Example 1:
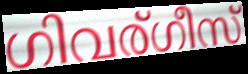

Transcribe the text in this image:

ഗിവര്ഗീസ്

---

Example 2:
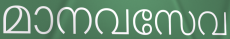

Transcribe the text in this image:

മാനവസേവ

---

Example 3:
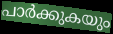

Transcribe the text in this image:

പാർക്കുകയും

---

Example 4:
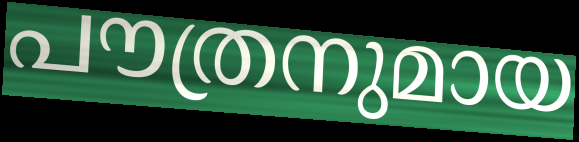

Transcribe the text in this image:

പൗത്രനുമായ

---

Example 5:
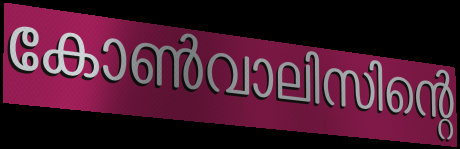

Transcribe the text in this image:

കോൺവാലിസിന്റെ